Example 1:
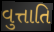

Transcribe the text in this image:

વુત્તાતિ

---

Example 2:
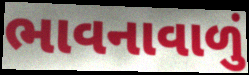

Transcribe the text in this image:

ભાવનાવાળું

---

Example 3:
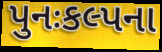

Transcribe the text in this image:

પુનઃકલ્પના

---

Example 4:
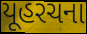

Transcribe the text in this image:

યૂહરચના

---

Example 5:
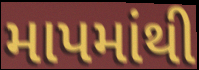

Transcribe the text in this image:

માપમાંથી